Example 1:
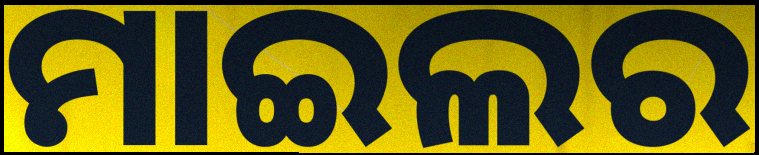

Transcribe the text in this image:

ମାଇଲର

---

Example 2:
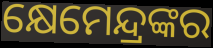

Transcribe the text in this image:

କ୍ଷେମେନ୍ଦ୍ରଙ୍କର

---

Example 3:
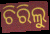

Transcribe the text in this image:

ଚିରିଲୁ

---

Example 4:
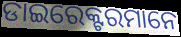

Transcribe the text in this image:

ଡାଇରେକ୍ଟରମାନେ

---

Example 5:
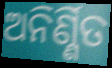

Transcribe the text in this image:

ଅନିର୍ଣ୍ଣିତ